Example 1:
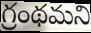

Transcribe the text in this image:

గ్రంథమని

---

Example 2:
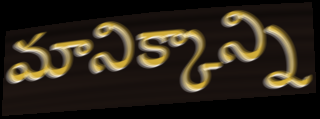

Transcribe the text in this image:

మానిక్కాన్ని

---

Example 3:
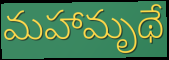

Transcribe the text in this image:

మహామృథే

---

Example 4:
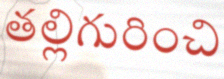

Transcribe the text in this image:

తల్లిగురించి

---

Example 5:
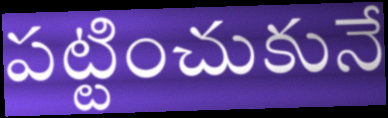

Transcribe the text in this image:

పట్టించుకునే